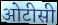
ओटीसी